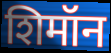
शिमॉन